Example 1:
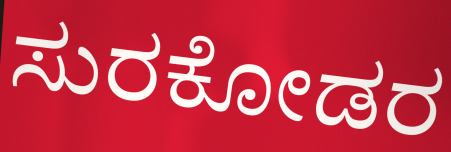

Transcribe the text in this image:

ಸುರಕೋಡರ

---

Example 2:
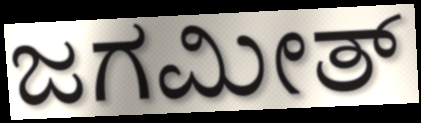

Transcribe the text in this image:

ಜಗಮೀತ್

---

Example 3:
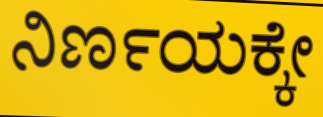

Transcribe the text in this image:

ನಿರ್ಣಯಕ್ಕೇ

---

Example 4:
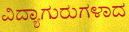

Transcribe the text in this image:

ವಿದ್ಯಾಗುರುಗಳಾದ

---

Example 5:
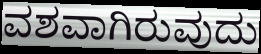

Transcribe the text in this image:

ವಶವಾಗಿರುವುದು